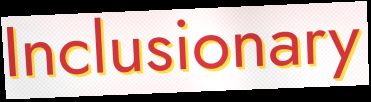
Inclusionary